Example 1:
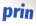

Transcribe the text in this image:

prin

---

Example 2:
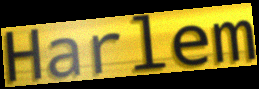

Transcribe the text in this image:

Harlem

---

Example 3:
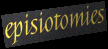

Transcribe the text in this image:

episiotomies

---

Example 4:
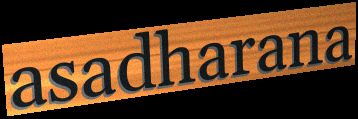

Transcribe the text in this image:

asadharana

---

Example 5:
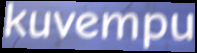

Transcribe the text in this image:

kuvempu